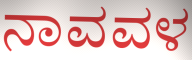
ನಾವವಳ